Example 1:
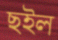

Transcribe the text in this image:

ছইল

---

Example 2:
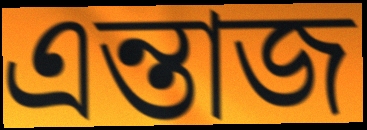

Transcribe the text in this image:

এন্তাজ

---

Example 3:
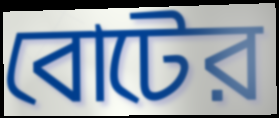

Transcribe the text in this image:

বোটের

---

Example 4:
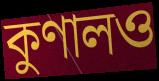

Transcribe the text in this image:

কুণালও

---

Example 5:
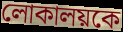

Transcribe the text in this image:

লোকালয়কে